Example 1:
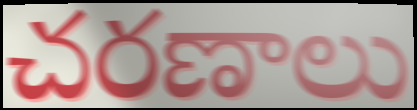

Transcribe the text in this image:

చరణాలు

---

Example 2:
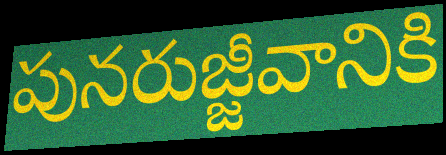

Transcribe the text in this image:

పునరుజ్జీవానికి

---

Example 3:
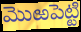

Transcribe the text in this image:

మొఱపెట్టి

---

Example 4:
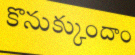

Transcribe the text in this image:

కొనుక్కుందాం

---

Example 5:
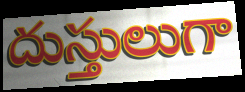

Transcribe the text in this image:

దుస్తులుగా